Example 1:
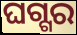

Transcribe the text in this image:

ଘଗ୍ଗର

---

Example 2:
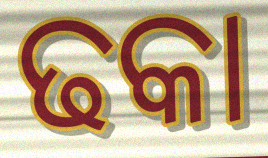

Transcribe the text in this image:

ଢକା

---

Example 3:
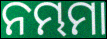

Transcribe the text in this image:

ନମ୍ଭମା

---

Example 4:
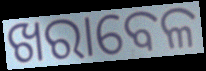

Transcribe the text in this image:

ଖରାବେଳ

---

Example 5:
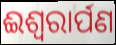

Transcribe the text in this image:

ଈଶ୍ୱରାର୍ପଣ